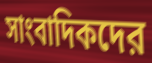
সাংবাদিকদের